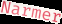
Narmer